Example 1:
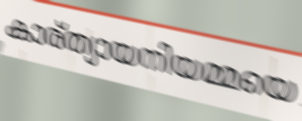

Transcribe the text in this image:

കാര്ത്യായനിയമ്മയെ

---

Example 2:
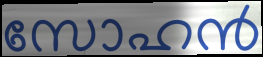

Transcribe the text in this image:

സോഹൻ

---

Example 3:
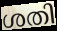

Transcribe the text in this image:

ശതി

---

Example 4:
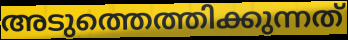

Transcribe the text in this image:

അടുത്തെത്തിക്കുന്നത്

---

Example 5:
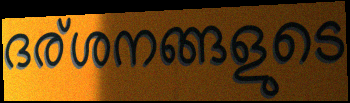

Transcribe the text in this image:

ദര്ശനങ്ങളുടെ